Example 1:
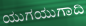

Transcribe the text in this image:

ಯುಗಯುಗಾದಿ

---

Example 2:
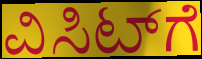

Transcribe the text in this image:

ವಿಸಿಟ್‌ಗೆ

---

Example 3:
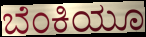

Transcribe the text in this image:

ಬೆಂಕಿಯೂ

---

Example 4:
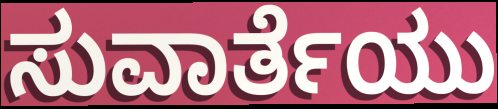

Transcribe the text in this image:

ಸುವಾರ್ತೆಯು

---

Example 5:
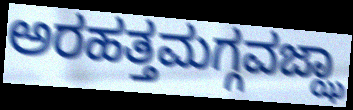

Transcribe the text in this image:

ಅರಹತ್ತಮಗ್ಗವಜ್ಝಾ